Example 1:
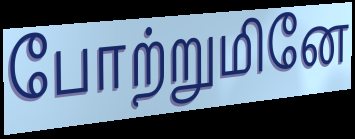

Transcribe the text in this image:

போற்றுமினே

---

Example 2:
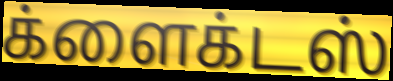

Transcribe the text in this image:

க்ளைக்டஸ்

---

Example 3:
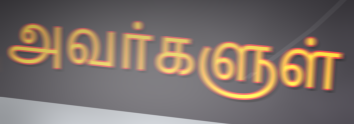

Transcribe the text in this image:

அவர்களுள்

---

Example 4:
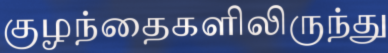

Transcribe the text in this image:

குழந்தைகளிலிருந்து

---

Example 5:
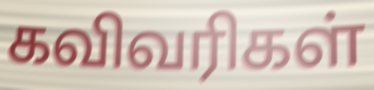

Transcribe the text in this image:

கவிவரிகள்